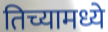
तिच्यामध्ये